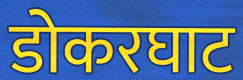
डोकरघाट